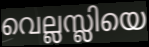
വെല്ലസ്ലിയെ